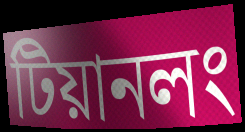
টিয়ানলং